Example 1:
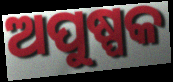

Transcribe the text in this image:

ଅପୁଷ୍ପକ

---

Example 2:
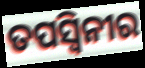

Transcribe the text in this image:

ତପସ୍ୱିନୀର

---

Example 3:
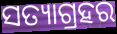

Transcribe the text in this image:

ସତ୍ୟାଗ୍ରହର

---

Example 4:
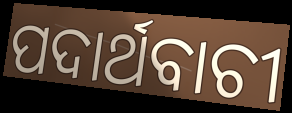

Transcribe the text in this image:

ପଦାର୍ଥବାଚୀ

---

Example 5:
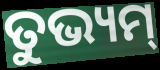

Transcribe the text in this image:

ତୁଭ୍ୟମ୍